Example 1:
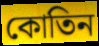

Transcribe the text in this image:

কোতিন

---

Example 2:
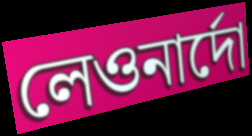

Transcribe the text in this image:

লেওনার্দো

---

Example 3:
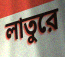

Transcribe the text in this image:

লাতুরে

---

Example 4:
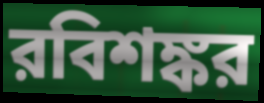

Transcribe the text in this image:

রবিশঙ্কর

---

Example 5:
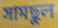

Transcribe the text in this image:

সামছুল